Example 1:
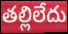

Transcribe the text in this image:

తల్లిలేదు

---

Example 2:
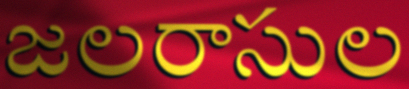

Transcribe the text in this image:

జలరాసుల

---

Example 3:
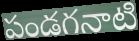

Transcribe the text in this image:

పండగనాటి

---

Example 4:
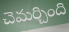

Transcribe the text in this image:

చెమర్చింది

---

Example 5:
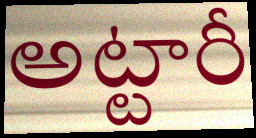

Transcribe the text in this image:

అట్టారీ